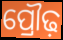
ପ୍ରୌଢ଼